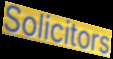
Solicitors